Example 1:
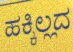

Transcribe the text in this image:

ಹಕ್ಕಿಲ್ಲದ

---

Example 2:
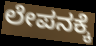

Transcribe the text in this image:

ಲೇಪನಕ್ಕೆ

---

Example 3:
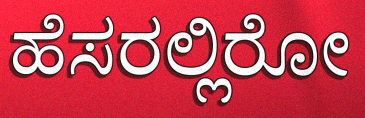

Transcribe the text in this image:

ಹೆಸರಲ್ಲಿರೋ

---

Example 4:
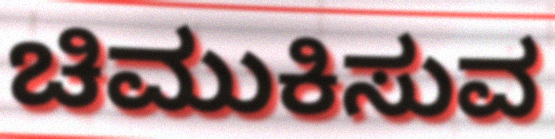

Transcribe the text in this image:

ಚಿಮುಕಿಸುವ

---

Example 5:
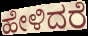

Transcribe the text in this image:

ಹೇಳಿದರೆ